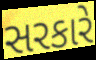
સરકારે